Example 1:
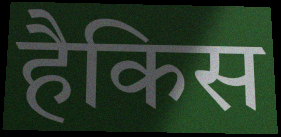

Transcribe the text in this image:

हैकिस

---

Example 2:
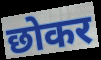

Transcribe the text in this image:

छोकर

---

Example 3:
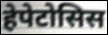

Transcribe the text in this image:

हेपेटोसिस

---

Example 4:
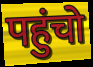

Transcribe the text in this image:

पहुंचो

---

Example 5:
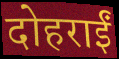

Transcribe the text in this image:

दोहराईं